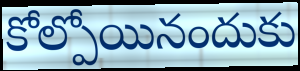
కోల్పోయినందుకు